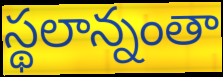
స్థలాన్నంతా